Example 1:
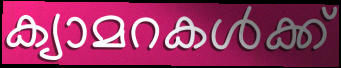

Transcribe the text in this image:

ക്യാമറകൾക്ക്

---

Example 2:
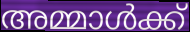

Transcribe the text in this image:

അമ്മാൾക്ക്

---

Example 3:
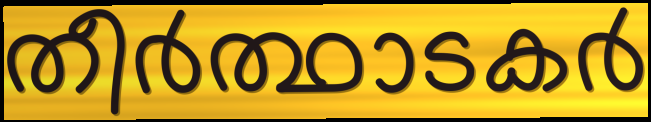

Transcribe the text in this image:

തീർത്ഥാടകർ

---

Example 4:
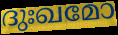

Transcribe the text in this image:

ദുഃഖമോ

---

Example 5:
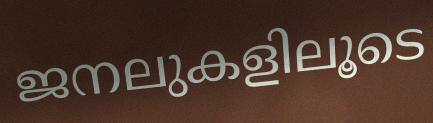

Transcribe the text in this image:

ജനലുകളിലൂടെ